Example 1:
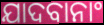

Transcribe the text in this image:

ଯାଦବାନାଂ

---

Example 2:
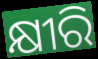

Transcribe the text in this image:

କ୍ଷୀରି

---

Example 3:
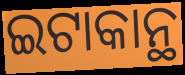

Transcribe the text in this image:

ଇଟାକାନ୍ଥ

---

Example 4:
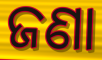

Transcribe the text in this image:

ଜଣା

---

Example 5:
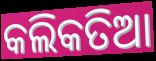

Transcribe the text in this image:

କଲିକତିଆ